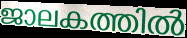
ജാലകത്തിൽ